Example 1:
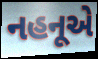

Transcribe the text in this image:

નહનૂએ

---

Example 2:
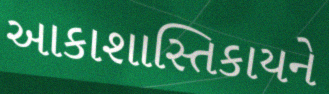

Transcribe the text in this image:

આકાશાસ્તિકાયને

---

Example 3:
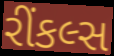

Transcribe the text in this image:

રીંકલ્સ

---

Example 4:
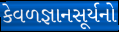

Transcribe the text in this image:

કેવળજ્ઞાનસૂર્યનો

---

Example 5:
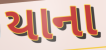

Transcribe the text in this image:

યાના